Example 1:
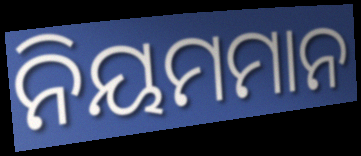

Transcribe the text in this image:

ନିୟମମାନ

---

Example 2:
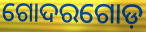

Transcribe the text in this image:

ଗୋଦରଗୋଡ଼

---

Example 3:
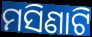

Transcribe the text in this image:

ମସିଣାଟି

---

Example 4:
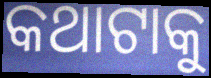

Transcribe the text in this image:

କଥାଟାକୁ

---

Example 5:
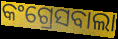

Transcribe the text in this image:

କଂଗ୍ରେସବାଲା